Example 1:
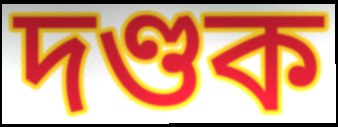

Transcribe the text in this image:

দণ্ডক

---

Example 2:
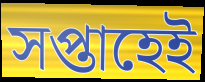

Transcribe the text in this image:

সপ্তাহেই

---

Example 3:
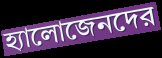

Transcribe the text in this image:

হ্যালোজেনদের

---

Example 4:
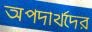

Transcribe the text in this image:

অপদার্থদের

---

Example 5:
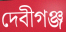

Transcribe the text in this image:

দেবীগঞ্জ